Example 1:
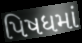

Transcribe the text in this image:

પિષધમાં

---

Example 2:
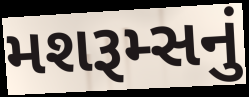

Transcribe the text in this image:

મશરૂમ્સનું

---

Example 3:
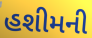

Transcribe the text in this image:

હશીમની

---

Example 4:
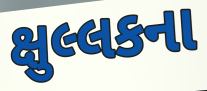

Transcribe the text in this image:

ક્ષુલ્લકના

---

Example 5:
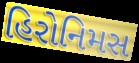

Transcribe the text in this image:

હિરોનિમસ